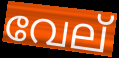
വേല്